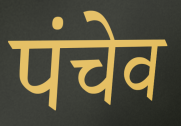
पंचेव